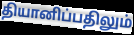
தியானிப்பதிலும்